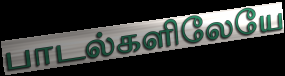
பாடல்களிலேயே